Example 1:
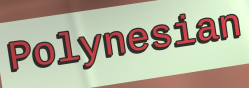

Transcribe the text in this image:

Polynesian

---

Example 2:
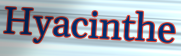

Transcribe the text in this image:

Hyacinthe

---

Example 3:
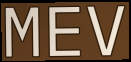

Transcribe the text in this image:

MEV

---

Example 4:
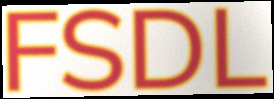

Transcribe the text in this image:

FSDL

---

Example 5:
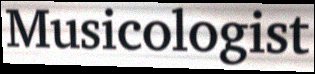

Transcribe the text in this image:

Musicologist